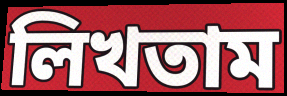
লিখতাম